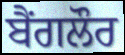
ਬੈੰਗਲੌਰ